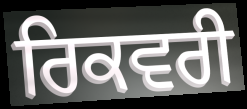
ਰਿਕਵਰੀ